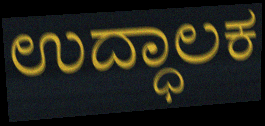
ಉದ್ಧಾಲಕ